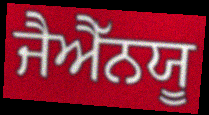
ਜੈਐੱਨਯੂ